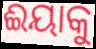
ଈୟାକୁ